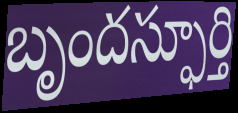
బృందస్ఫూర్తి